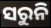
ସରୁନି